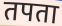
तपता